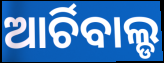
ଆର୍ଚିବାଲ୍ଡ